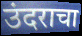
उंदराचा